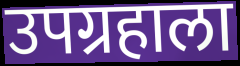
उपग्रहाला